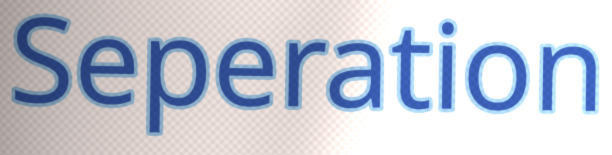
Seperation